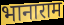
भानाराम